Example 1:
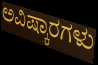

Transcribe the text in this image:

ಅವಿಷ್ಕಾರಗಳು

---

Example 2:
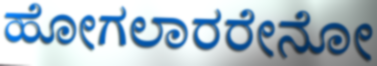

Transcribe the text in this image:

ಹೋಗಲಾರರೇನೋ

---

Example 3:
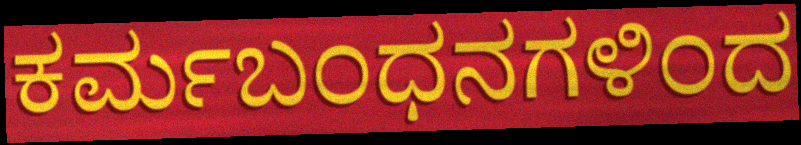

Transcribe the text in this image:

ಕರ್ಮಬಂಧನಗಳಿಂದ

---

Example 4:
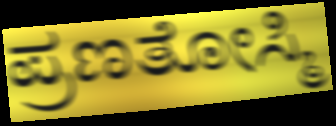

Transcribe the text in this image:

ಪ್ರಣತೋಸ್ಮಿ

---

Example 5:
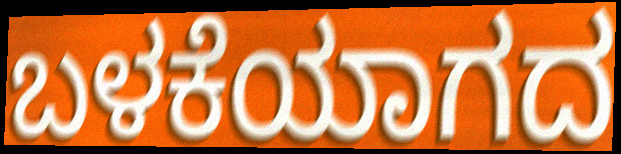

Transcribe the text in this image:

ಬಳಕೆಯಾಗದ